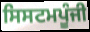
ਸਿਸਟਮਪੂੰਜੀ